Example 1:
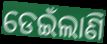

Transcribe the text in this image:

ଡେଇଁଲାଣି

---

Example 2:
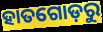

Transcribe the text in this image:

ହାତଗୋଡ଼ରୁ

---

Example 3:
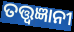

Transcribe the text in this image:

ତତ୍ତ୍ଵଜ୍ଞାନୀ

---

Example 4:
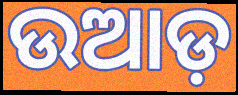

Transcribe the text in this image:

ଉଆଡ଼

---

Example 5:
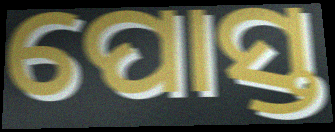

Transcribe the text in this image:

ପୋସ୍ତ